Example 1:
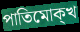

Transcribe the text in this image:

পাতিমোক্খ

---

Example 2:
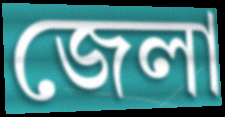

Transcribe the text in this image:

জেলা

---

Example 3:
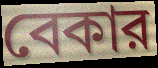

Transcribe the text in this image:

বেকার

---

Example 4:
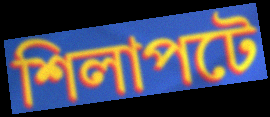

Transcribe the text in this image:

শিলাপটে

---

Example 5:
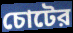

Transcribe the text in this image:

চোটের